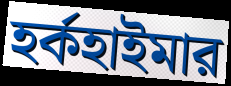
হর্কহাইমার